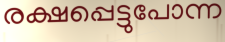
രക്ഷപ്പെട്ടുപോന്ന